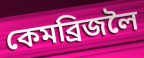
কেমব্ৰিজলৈ